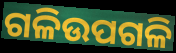
ଗଳିଉପଗଳି